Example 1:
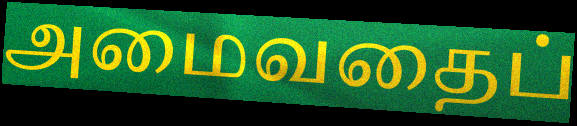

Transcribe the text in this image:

அமைவதைப்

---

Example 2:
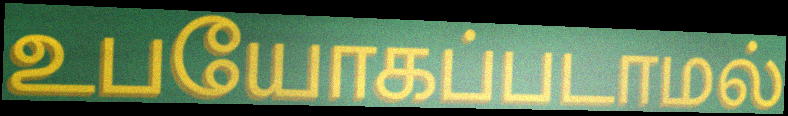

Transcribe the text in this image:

உபயோகப்படாமல்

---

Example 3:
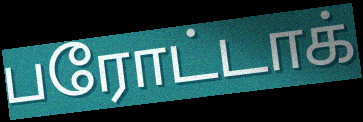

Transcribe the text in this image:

பரோட்டாக்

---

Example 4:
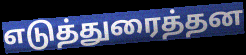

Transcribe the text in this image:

எடுத்துரைத்தன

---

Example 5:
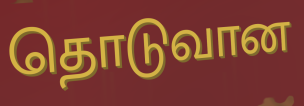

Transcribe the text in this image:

தொடுவான